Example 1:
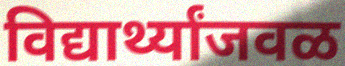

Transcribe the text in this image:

विद्यार्थ्यांजवळ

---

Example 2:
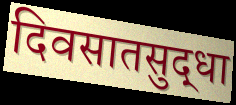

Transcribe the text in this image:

दिवसातसुद्धा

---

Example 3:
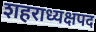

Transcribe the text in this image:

शहराध्यक्षपद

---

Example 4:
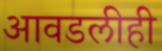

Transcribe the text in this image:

आवडलीही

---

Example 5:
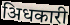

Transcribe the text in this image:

अिधकारी